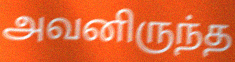
அவனிருந்த